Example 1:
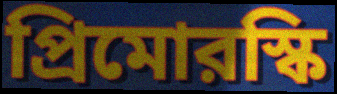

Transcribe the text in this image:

প্রিমোরস্কি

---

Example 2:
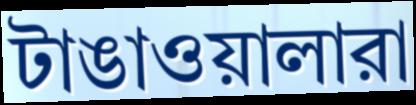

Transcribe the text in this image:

টাঙাওয়ালারা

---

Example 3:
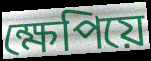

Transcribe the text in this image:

ক্ষেপিয়ে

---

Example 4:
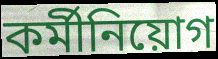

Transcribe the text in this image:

কর্মীনিয়োগ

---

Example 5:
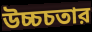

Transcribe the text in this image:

উচ্চচতার